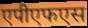
एपीएफएस